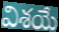
విశయే